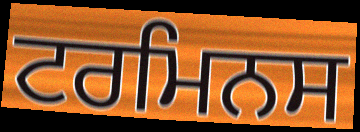
ਟਰਮਿਨਸ